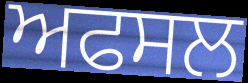
ਅਫਸਲ